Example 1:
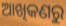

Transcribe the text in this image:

ଆଖିକଣରୁ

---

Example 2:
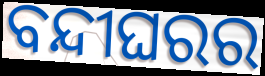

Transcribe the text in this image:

ବନ୍ଦୀଘରର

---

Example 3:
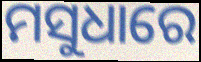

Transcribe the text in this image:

ମସୁଧାରେ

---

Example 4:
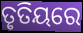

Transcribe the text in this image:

ତୃତିୟରେ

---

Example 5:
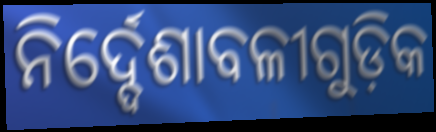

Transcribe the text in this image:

ନିର୍ଦ୍ଦେଶାବଳୀଗୁଡ଼ିକ